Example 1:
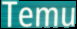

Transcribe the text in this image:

Temu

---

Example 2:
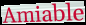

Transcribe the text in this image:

Amiable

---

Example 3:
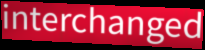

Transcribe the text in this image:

interchanged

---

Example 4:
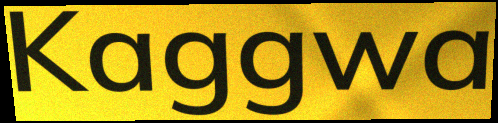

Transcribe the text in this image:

Kaggwa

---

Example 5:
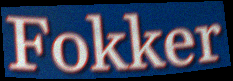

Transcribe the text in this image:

Fokker